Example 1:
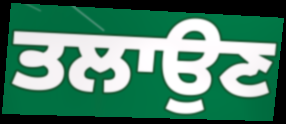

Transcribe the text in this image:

ਤਲਾਉਣ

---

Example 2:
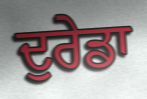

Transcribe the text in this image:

ਦੁਰੇਡਾ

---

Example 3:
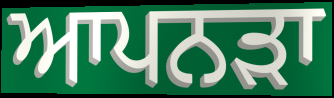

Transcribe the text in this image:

ਆਪਨੜਾ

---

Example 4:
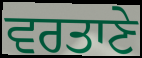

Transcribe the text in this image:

ਵਰਤਾਣੇ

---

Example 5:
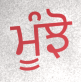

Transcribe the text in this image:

ਮੂੰਝੋ